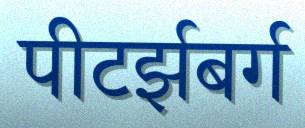
पीटर्झबर्ग